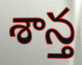
శాన్త